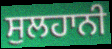
ਸੁਲਹਾਨੀ